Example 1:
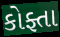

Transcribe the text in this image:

કોફ્તા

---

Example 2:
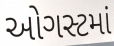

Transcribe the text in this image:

ઓગસ્ટમાં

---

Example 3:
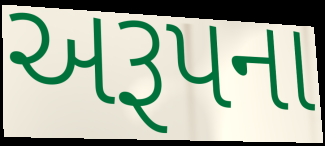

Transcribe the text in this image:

અરૂપના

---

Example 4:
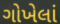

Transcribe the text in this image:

ગોખેલાં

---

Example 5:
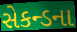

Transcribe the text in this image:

સેકન્ડના